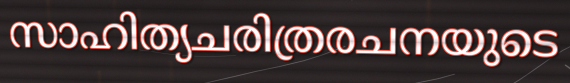
സാഹിത്യചരിത്രരചനയുടെ